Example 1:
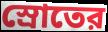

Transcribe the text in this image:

স্রোতের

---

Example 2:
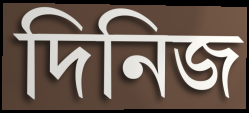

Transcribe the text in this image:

দিনিজ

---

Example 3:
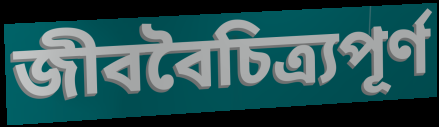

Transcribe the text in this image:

জীববৈচিত্র্যপূর্ণ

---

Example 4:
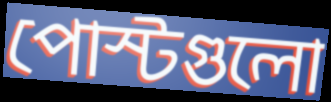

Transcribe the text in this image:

পোস্টগুলো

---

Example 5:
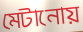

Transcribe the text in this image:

মেটানোয়